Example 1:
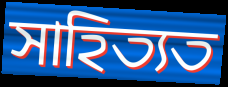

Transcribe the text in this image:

সাহিত্যত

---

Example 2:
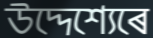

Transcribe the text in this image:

উদ্দেশ্যেৰে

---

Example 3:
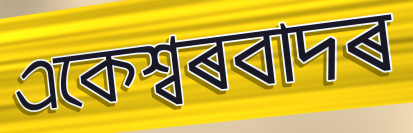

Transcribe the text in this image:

একেশ্বৰবাদৰ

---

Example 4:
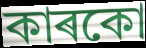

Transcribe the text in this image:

কাৰকো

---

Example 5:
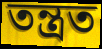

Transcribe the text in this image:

তন্ত্ৰত